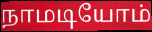
நாமடியோம்